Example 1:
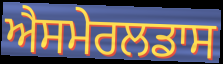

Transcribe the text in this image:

ਐਸਮੇਰਲਡਾਸ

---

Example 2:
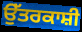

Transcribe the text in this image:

ਉੱਤਰਕਾਸ਼ੀ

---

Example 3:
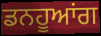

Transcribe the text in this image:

ਡਨਹੂਆਂਗ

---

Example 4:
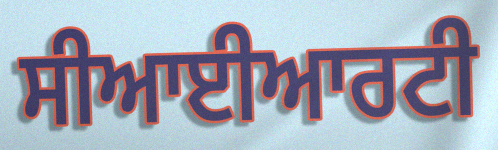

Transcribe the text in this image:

ਸੀਆਈਆਰਟੀ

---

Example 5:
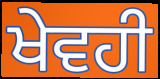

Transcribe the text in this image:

ਖੇਵਹੀ